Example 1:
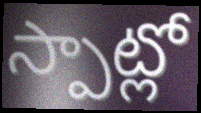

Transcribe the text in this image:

స్పాట్లో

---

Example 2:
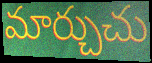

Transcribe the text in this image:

మార్చుచు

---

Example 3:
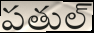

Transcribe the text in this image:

పతుల్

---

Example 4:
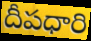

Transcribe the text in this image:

దీపధారి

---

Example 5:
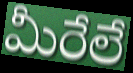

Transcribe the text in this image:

మీరేలే